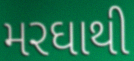
મરઘાથી